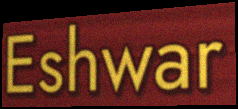
Eshwar